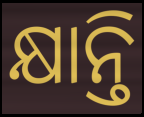
କ୍ଷାନ୍ତି